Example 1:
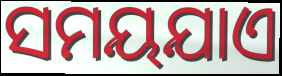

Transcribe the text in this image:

ସମୟଯାଏ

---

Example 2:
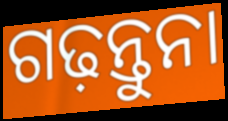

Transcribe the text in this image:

ଗଢ଼ନ୍ତୁନା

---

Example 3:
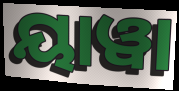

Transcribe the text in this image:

ୟାୱା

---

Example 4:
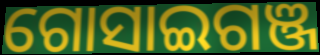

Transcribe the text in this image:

ଗୋସାଇଗଞ୍ଜ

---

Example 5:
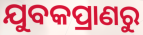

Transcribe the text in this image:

ଯୁବକପ୍ରାଣରୁ